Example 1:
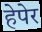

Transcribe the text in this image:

हेपेर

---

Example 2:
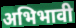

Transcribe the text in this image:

अभिभावी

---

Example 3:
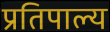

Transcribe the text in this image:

प्रतिपाल्य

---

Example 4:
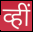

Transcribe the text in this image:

व्हीं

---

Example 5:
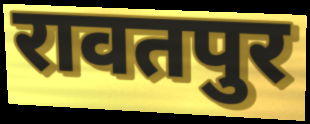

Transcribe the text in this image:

रावतपुर